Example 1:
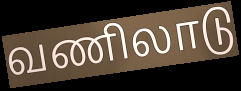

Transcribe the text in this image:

வணிலாடு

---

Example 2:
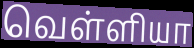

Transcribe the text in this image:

வெள்ளியா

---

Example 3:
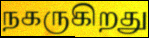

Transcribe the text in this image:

நகருகிறது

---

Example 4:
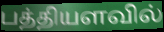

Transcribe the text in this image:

பத்தியளவில்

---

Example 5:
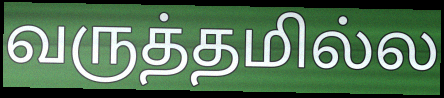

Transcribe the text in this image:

வருத்தமில்ல